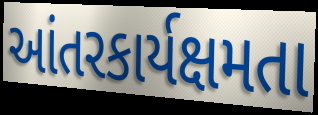
આંતરકાર્યક્ષમતા